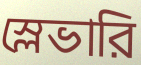
স্লেভারি